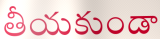
తీయకుండా